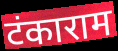
टंकाराम